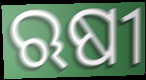
ଋଷୀ